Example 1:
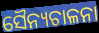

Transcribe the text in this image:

ସୈନ୍ୟଚାଳନା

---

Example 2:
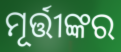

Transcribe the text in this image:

ମୂର୍ତ୍ତୀଙ୍କର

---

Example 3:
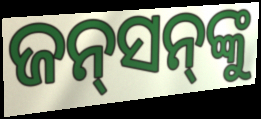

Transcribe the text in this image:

ଜନ୍‍ସନ୍‍ଙ୍କୁ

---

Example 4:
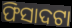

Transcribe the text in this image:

ଫିସାଦଟା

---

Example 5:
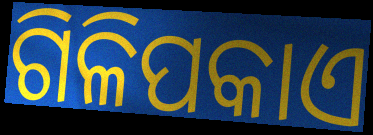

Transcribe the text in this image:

ଗିଳିପକାଏ